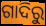
ଗାଦିରୁ